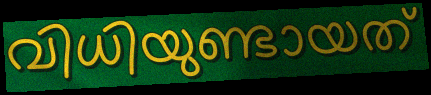
വിധിയുണ്ടായത്